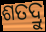
ଶତଦ୍ରୁ